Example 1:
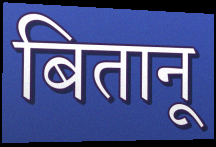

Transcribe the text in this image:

बितानू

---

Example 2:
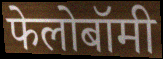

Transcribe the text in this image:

फेलोबॉमी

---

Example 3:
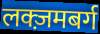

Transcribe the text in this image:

लक्ज़मबर्ग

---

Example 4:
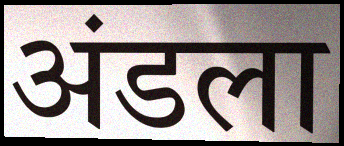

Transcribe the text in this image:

अंडला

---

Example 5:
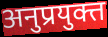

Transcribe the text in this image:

अनुप्रयुक्त